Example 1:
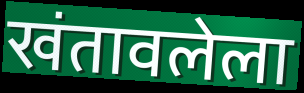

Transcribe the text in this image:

खंतावलेला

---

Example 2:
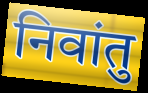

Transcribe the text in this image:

निवांतु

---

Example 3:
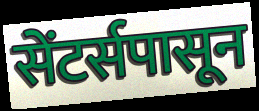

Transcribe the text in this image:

सेंटर्सपासून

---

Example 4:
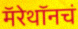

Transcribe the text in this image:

मॅरेथॉनचं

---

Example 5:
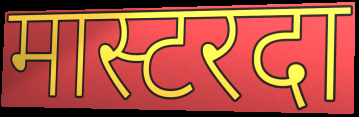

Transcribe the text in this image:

मास्टरदा